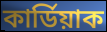
কাৰ্ডিয়াক